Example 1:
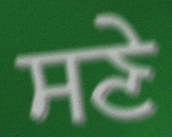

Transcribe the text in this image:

ਸਣੇ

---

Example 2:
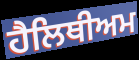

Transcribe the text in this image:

ਹੈਲਿਥੀਅਮ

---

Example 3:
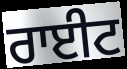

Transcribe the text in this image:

ਰਾਈਟ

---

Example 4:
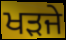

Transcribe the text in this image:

ਖੜਜੇ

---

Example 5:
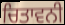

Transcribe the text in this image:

ਚਿਤਾਵਨੀ